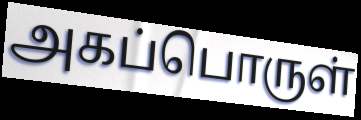
அகப்பொருள்